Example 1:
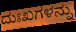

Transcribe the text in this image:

ದುಃಖಗಳನ್ನು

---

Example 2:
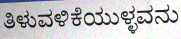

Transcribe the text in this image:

ತಿಳುವಳಿಕೆಯುಳ್ಳವನು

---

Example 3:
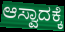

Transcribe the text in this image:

ಆಸ್ವಾದಕ್ಕೆ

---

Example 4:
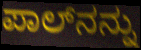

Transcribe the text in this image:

ಪಾಲ್‍ನನ್ನು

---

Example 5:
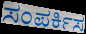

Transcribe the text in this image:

ಸಂಪರ್ಕಿಸ